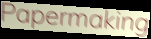
Papermaking